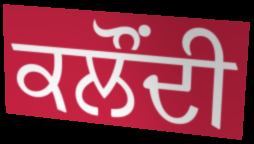
ਕਲੌਂਦੀ